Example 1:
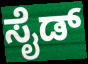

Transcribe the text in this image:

ಸೈಡ್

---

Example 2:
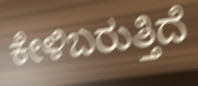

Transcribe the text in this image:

ಕೇಳಿಬರುತ್ತಿದೆ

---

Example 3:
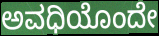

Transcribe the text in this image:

ಅವಧಿಯೊಂದೇ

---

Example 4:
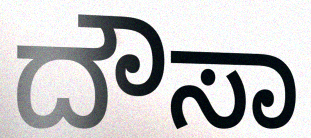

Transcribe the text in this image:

ದೌಸಾ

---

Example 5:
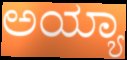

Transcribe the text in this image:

ಅಯ್ಯಾ